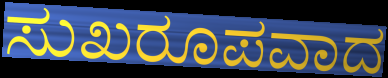
ಸುಖರೂಪವಾದ